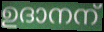
ഉദാനന്